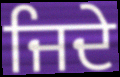
ਜਿਦੇ